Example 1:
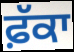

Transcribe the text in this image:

ਫ਼ੱਕਾ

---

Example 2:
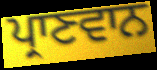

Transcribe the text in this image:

ਪ੍ਰਾਣਵਾਨ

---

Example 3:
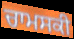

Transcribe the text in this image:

ਚਾਮਸਕੀ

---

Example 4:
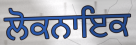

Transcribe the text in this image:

ਲੋਕਨਾਇਕ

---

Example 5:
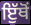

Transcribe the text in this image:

ਇੁੱਥੋਂ